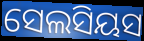
ସେଲସିୟସ